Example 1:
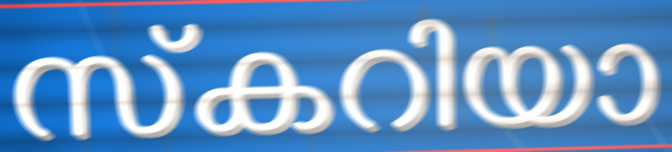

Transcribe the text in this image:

സ്‌കറിയാ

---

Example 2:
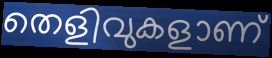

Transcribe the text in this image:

തെളിവുകളാണ്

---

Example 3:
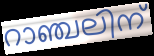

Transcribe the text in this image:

റാഞ്ചലിന്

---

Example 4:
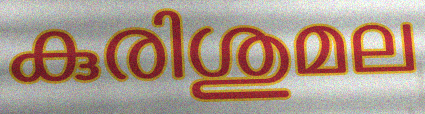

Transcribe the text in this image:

കുരിശുമല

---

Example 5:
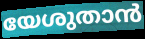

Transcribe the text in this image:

യേശുതാൻ